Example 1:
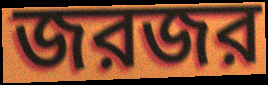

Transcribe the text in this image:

জরজর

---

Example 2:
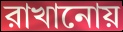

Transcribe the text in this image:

রাখানোয়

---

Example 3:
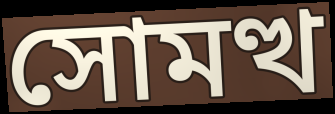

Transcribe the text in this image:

সোমত্থ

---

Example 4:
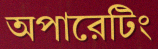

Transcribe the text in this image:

অপারেটিং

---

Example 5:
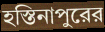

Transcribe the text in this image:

হস্তিনাপুরের